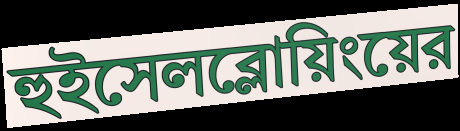
হুইসেলব্লোয়িংয়ের